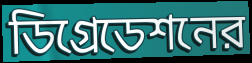
ডিগ্রেডেশনের